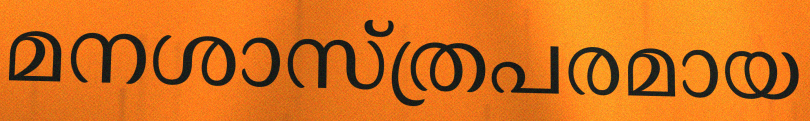
മനശാസ്ത്രപരമായ